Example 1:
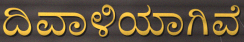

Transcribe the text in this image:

ದಿವಾಳಿಯಾಗಿವೆ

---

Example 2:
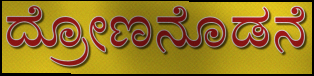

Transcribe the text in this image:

ದ್ರೋಣನೊಡನೆ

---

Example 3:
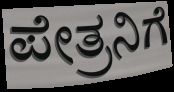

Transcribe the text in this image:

ಪೇತ್ರನಿಗೆ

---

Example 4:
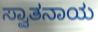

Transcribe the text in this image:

ಸ್ವಾತನಾಯ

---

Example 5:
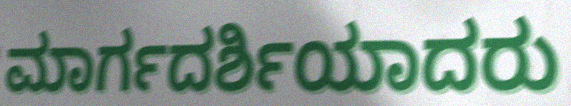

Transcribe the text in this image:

ಮಾರ್ಗದರ್ಶಿಯಾದರು